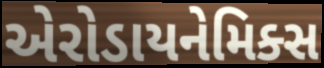
એરોડાયનેમિક્સ